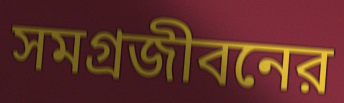
সমগ্রজীবনের